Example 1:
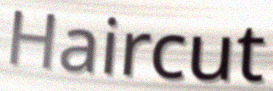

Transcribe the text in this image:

Haircut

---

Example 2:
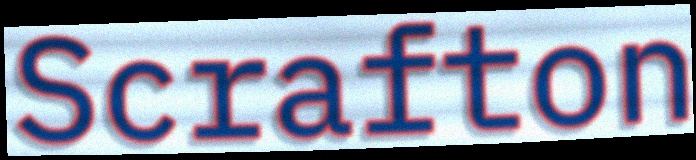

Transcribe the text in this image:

Scrafton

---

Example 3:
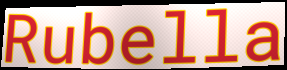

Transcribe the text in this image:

Rubella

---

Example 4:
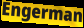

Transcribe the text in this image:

Engerman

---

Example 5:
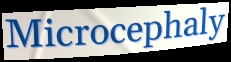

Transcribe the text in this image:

Microcephaly